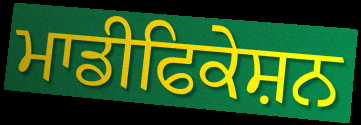
ਮਾਡੀਫਿਕੇਸ਼ਨ